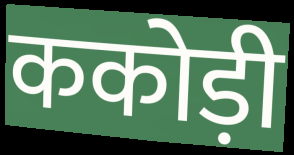
ककोड़ी